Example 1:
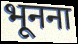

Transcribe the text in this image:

भूनना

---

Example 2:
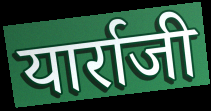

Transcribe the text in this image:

यार्राजी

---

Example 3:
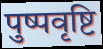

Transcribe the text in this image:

पुष्पवृष्टि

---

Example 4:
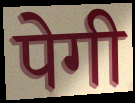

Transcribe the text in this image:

पेगी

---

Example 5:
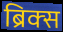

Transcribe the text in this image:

ब्रिक्‍स